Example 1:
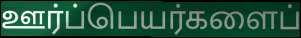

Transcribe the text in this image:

ஊர்ப்பெயர்களைப்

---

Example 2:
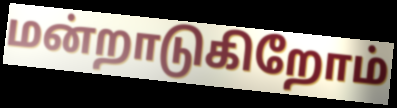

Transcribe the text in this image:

மன்றாடுகிறோம்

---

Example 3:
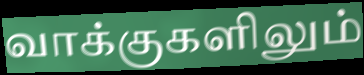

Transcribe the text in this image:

வாக்குகளிலும்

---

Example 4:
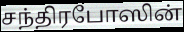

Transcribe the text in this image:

சந்திரபோஸின்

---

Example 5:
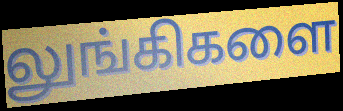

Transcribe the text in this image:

லுங்கிகளை